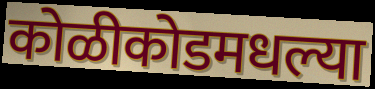
कोळीकोडमधल्या